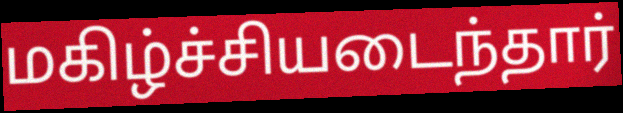
மகிழ்ச்சியடைந்தார்